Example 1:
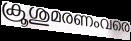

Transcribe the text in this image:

ക്രൂശുമരണംവരെ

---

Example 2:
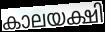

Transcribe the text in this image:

കാലയക്ഷി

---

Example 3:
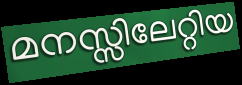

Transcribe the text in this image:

മനസ്സിലേറ്റിയ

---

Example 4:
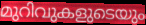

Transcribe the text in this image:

മുറിവുകളുടെയും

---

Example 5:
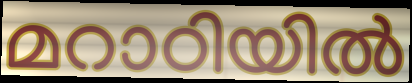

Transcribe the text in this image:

മറാഠിയിൽ